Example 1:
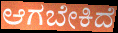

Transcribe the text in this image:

ಆಗಬೇಕಿದೆ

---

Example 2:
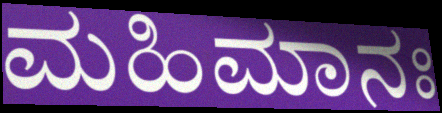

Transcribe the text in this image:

ಮಹಿಮಾನಃ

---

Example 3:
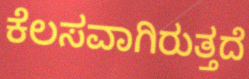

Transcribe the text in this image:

ಕೆಲಸವಾಗಿರುತ್ತದೆ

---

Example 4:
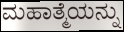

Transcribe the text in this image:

ಮಹಾತ್ಮೆಯನ್ನು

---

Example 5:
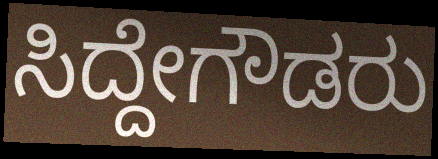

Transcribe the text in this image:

ಸಿದ್ದೇಗೌಡರು